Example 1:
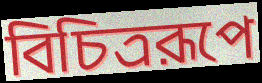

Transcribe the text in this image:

বিচিত্ররূপে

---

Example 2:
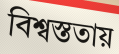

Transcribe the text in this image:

বিশ্বস্ততায়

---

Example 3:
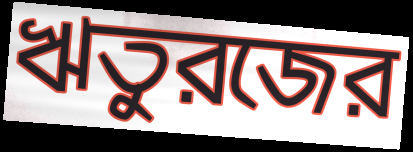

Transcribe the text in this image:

ঋতুরজের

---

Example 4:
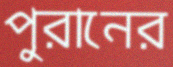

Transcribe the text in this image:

পুরানের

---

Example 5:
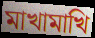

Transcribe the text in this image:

মাখামাখি